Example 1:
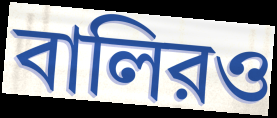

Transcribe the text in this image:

বালিরও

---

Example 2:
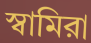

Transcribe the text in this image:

স্বামিরা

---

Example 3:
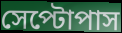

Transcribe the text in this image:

সেপ্টোপাস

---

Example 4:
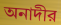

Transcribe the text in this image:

অনাদীর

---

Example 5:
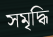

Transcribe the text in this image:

সমৃদ্ধি